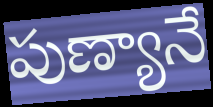
పుణ్యానే